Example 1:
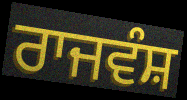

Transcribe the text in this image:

ਰਾਜਵੰਸ਼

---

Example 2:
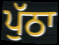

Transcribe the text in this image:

ਪੁੱਠਾ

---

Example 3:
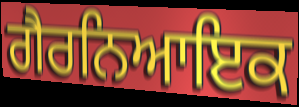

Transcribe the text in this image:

ਗੈਰਨਿਆਇਕ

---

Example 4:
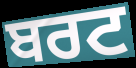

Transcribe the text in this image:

ਬਰਟ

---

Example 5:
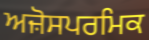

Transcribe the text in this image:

ਅਜ਼ੋਸਪਰਮਿਕ